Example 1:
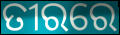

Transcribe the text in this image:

ତୀରରେ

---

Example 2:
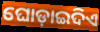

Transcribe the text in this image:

ଘୋଡ଼ାଇଦିଏ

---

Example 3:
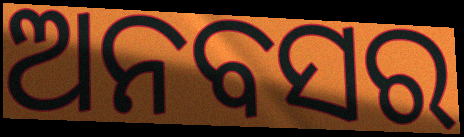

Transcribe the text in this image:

ଅନବସର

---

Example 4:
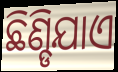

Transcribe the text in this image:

ଛିଣ୍ଡିଯାଏ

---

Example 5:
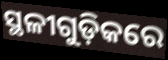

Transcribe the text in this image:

ସ୍ଥଳୀଗୁଡ଼ିକରେ